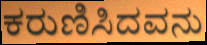
ಕರುಣಿಸಿದವನು